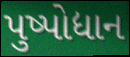
પુષ્પોદ્યાન